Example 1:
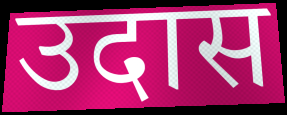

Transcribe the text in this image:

उदास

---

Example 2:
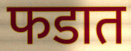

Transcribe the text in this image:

फडात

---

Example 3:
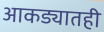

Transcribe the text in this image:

आकड्यातही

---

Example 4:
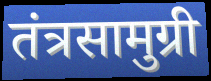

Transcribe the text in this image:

तंत्रसामुग्री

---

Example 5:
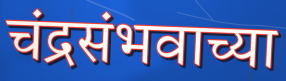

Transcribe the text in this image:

चंद्रसंभवाच्या